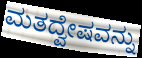
ಮತದ್ವೇಷವನ್ನು